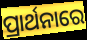
ପ୍ରାର୍ଥନାରେ